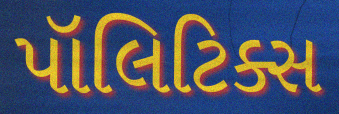
પૉલિટિક્સ